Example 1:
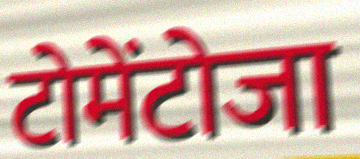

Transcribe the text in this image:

टोमेंटोजा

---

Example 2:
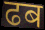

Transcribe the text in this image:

ढब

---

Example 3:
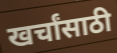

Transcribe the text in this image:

खर्चांसाठी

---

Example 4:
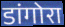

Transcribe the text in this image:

डांगोरा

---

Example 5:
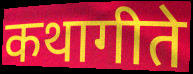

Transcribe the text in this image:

कथागीते